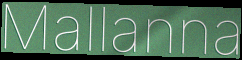
Mallanna